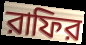
রাফির